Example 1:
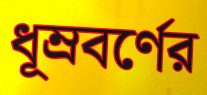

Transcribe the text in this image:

ধূম্রবর্ণের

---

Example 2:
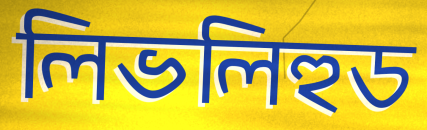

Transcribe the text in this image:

লিভলিহুড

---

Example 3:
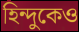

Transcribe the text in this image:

হিন্দুকেও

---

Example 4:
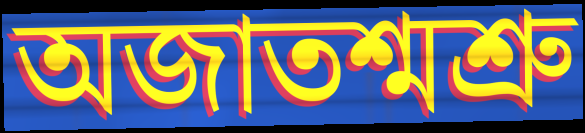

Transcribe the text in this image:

অজাতশ্মশ্রু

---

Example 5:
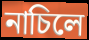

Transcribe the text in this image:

নাচিলে